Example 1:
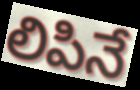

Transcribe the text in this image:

లిపినే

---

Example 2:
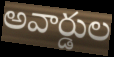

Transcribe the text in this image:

అవార్డుల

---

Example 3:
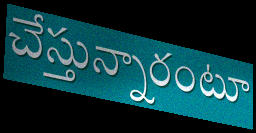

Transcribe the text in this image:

చేస్తున్నారంటూ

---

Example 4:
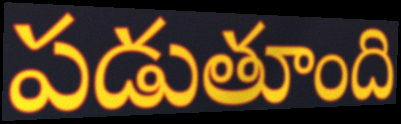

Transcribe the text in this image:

పడుతూంది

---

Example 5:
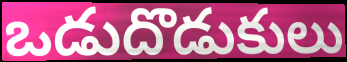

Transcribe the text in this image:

ఒడుదొడుకులు